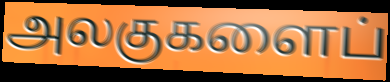
அலகுகளைப்